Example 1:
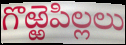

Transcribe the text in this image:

గొఱ్ఱెపిల్లలు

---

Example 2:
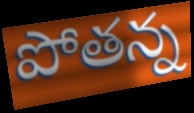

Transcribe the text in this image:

పోతన్న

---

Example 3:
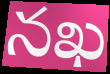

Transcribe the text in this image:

నఖ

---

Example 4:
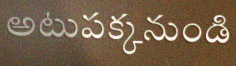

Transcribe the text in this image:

అటుపక్కనుండి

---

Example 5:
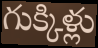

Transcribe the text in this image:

గుక్కిళ్లు